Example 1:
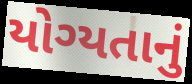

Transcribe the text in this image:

યોગ્યતાનું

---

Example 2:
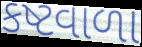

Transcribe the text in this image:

કષ્ટવાળા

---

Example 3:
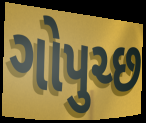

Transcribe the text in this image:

ગોપુચ્છ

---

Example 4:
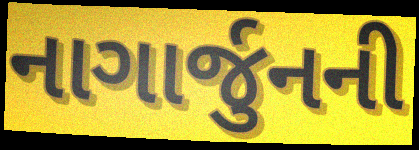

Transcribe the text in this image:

નાગાર્જુનની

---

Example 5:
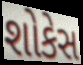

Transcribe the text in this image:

શોકેસ